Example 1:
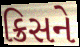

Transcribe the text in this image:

ક્રિસને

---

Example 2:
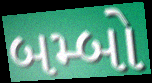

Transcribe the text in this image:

બમ્બો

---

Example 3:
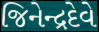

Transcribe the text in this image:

જિનેન્દ્રદેવે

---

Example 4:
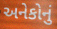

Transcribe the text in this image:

અનેકોનું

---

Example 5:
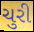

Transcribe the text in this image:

ચુરી